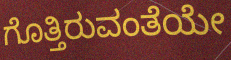
ಗೊತ್ತಿರುವಂತೆಯೇ